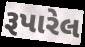
રૂપારેલ